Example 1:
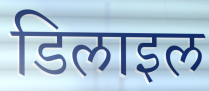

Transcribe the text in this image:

डिलाइल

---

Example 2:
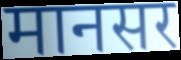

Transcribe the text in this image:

मानसर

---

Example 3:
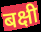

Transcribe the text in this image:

बक्षी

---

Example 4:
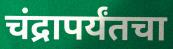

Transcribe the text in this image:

चंद्रापर्यंतचा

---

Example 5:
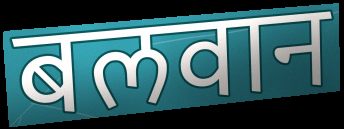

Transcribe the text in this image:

बलवान